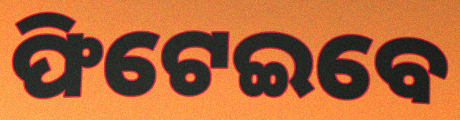
ଫିଟେଇବେ